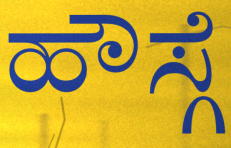
ಹೌಸ್ಗೆ